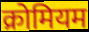
क्रोमियम